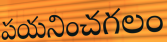
పయనించగలం